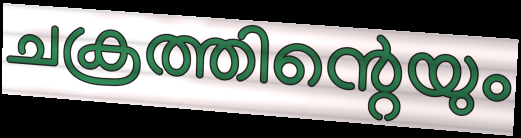
ചക്രത്തിന്റെയും